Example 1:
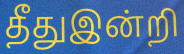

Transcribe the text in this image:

தீதுஇன்றி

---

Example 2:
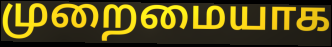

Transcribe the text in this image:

முறைமையாக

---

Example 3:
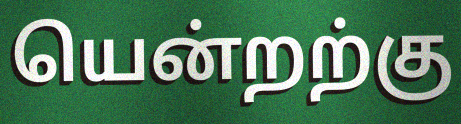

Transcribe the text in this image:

யென்றற்கு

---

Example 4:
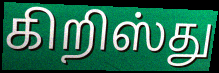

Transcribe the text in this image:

கிறிஸ்து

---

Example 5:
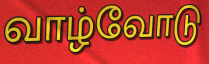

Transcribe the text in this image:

வாழ்வோடு